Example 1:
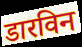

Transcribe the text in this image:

डारविन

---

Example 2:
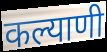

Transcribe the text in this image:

कल्याणी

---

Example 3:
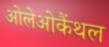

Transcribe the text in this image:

ओलेओकैंथल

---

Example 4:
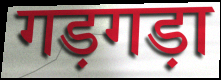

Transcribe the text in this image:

गड़गड़ा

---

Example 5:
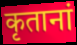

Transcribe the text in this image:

कृतानां